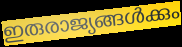
ഇരുരാജ്യങ്ങൾക്കും